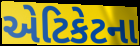
એટિકેટના